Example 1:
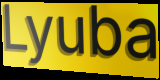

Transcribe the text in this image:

Lyuba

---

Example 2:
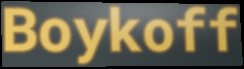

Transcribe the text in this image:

Boykoff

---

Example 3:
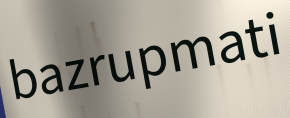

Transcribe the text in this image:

bazrupmati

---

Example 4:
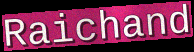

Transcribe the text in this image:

Raichand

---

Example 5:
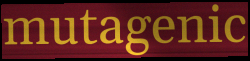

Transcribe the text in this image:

mutagenic